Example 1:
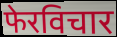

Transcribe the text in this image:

फेरविचार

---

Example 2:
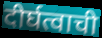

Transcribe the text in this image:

दीर्घत्वाची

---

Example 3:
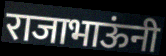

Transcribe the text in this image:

राजाभाऊंनी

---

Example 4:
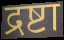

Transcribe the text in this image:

द्रष्टा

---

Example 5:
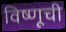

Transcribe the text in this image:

विष्णूची